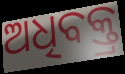
ଅଧିବକ୍ତ୍ର